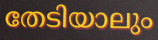
തേടിയാലും